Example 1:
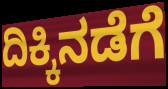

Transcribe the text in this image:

ದಿಕ್ಕಿನಡೆಗೆ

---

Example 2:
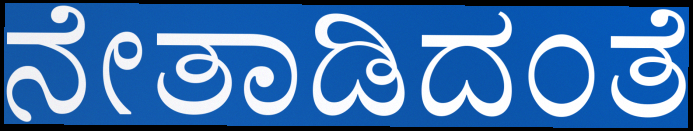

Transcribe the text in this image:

ನೇತಾಡಿದಂತೆ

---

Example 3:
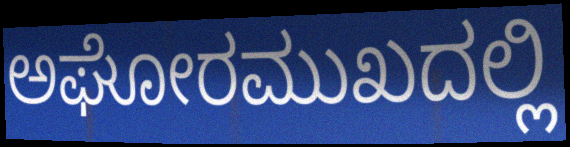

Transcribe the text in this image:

ಅಘೋರಮುಖದಲ್ಲಿ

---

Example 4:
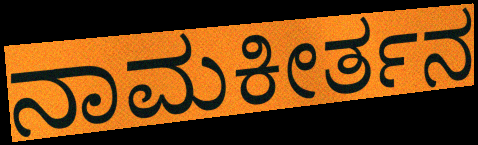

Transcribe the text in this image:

ನಾಮಕೀರ್ತನ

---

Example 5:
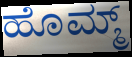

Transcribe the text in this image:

ಹೊಮ್ಮ್